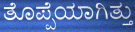
ತೊಪ್ಪೆಯಾಗಿತ್ತು